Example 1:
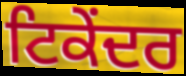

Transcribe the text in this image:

ਟਿਕੇਂਦਰ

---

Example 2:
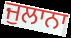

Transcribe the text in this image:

ਜੁਲਾਨਾ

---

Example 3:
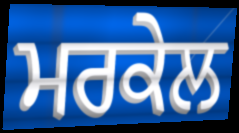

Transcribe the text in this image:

ਮਰਕੇਲ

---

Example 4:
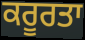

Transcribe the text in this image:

ਕਰੂਰਤਾ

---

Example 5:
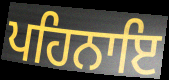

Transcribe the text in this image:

ਪਹਿਨਾਇ